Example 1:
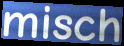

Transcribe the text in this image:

misch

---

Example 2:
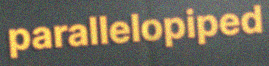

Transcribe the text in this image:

parallelopiped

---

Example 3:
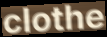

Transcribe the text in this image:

clothe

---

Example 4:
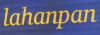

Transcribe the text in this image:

lahanpan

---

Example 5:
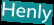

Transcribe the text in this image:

Henly